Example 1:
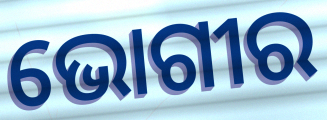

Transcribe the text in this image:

ଭୋଗୀର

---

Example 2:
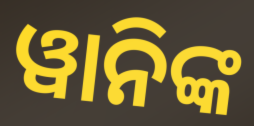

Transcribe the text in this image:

ୱାନିଙ୍କ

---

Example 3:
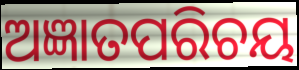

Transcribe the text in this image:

ଅଜ୍ଞାତପରିଚୟ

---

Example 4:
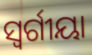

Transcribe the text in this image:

ସ୍ବର୍ଗୀୟା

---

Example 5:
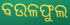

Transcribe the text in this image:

ବଉଳଫୁଲ